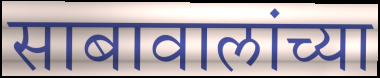
साबावालांच्या